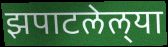
झपाटलेल्या